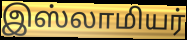
இஸ்லாமியர்